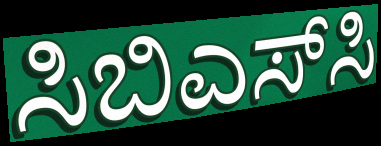
ಸಿಬಿಎಸ್‌ಸಿ